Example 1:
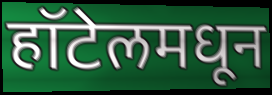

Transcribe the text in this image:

हॉटेलमधून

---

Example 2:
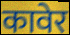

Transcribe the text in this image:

कावेर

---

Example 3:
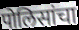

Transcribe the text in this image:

पोलिसांचा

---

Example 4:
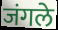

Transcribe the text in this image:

जंगले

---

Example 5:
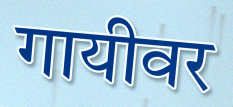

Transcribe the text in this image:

गायीवर